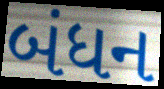
બંધન